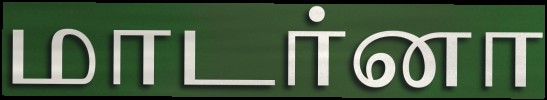
மாடர்னா